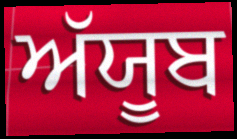
ਅੱਯੂਬ